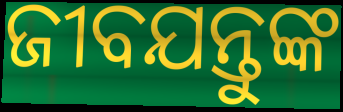
ଜୀବଯନ୍ତୁଙ୍କ